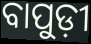
ବାପୁଡ଼ୀ